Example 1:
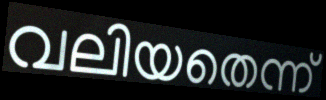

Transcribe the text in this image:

വലിയതെന്ന്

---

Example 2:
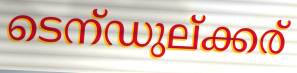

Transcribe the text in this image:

ടെന്ഡുല്ക്കര്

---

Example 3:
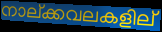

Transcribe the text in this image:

നാല്ക്കവലകളില്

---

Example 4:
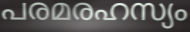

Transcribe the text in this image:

പരമരഹസ്യം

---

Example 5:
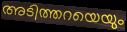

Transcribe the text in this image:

അടിത്തറയെയും